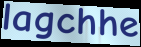
lagchhe